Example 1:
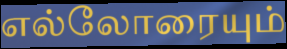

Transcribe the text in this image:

எல்லோரையும்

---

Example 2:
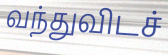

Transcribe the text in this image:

வந்துவிடச்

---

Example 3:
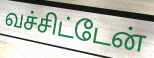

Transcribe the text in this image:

வச்சிட்டேன்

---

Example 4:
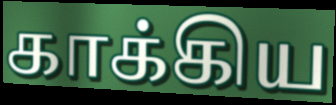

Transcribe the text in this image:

காக்கிய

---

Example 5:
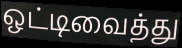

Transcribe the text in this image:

ஒட்டிவைத்து